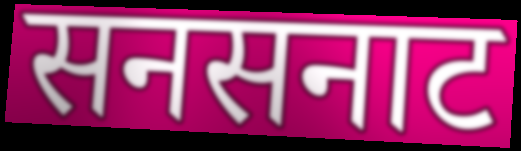
सनसनाट